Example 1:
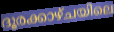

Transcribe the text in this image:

ദൂരക്കാഴ്ചയിലെ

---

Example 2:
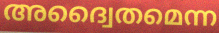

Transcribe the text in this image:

അദ്വൈതമെന്ന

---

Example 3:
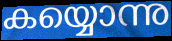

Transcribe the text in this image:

കയ്യൊന്നു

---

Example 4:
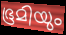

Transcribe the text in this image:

ഭൂമിയും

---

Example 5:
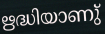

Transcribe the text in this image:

ഋദ്ധിയാണു്